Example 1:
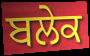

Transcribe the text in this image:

ਬਲੇਕ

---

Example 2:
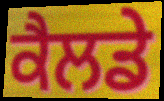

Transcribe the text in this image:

ਕੈਲਡੇ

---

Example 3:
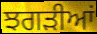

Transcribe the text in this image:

ਝਗੜੀਆਂ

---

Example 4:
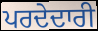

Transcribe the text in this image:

ਪਰਦੇਦਾਰੀ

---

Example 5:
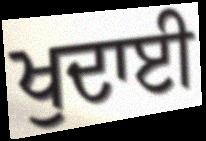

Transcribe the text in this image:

ਖੁਦਾਈ